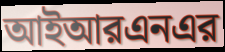
আইআরএনএর